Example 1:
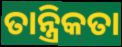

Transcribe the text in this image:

ତାନ୍ତ୍ରିକତା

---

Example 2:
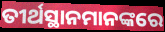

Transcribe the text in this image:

ତୀର୍ଥସ୍ଥାନମାନଙ୍କରେ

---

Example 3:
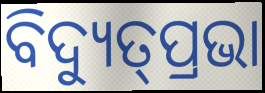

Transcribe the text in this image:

ବିଦ୍ୟୁତ୍‌ପ୍ରଭା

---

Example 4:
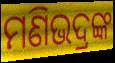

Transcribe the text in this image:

ମଣିଭଦ୍ରଙ୍କ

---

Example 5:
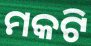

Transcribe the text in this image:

ମକଟି